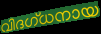
വിദഗ്ധനായ